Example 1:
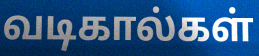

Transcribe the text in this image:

வடிகால்கள்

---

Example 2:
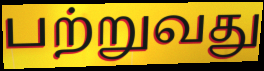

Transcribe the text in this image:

பற்றுவது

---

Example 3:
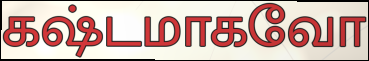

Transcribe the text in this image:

கஷ்டமாகவோ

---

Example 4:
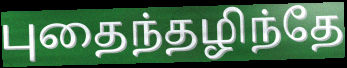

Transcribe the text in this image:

புதைந்தழிந்தே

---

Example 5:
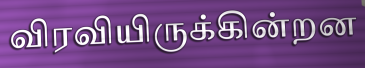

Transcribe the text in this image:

விரவியிருக்கின்றன